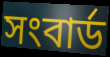
সংবার্ড